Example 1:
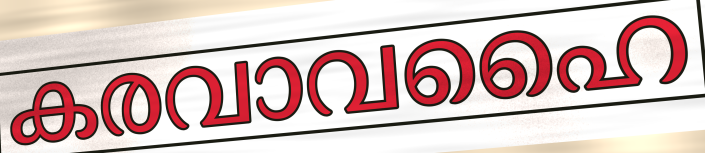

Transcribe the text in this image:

കരവാവഹൈ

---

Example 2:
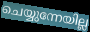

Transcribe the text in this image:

ചെയ്യുന്നേയില്ല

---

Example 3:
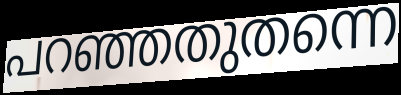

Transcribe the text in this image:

പറഞ്ഞതുതന്നെ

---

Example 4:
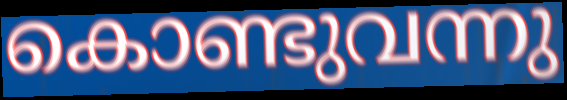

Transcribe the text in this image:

കൊണ്ടുവന്നു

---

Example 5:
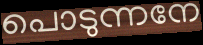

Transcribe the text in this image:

പൊടുന്നനേ